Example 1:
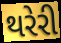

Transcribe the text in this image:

થરેરી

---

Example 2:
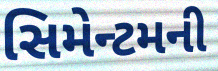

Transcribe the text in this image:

સિમેન્ટમની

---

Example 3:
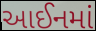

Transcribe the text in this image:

આઈનમાં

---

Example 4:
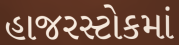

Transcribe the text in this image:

હાજરસ્ટોકમાં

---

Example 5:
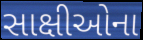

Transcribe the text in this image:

સાક્ષીઓના